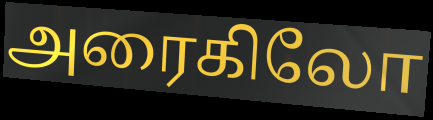
அரைகிலோ